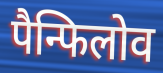
पैन्फिलोव